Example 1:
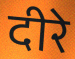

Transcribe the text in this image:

दीरे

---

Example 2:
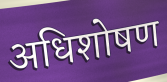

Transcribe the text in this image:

अधिशोषण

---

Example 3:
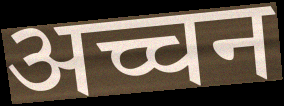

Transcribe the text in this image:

अच्चन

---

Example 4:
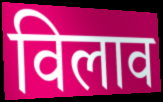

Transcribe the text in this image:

विलाव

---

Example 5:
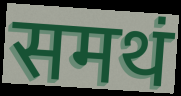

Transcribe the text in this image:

समथं